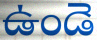
ఉండె